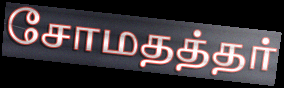
சோமதத்தர்